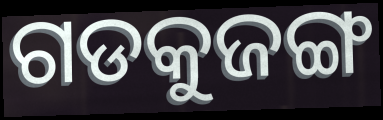
ଗଡକୁଜଙ୍ଗ